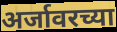
अर्जावरच्या